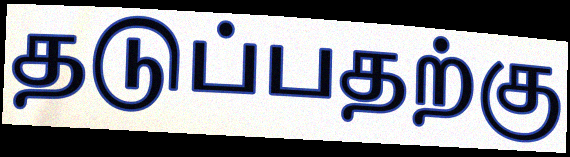
தடுப்பதற்கு